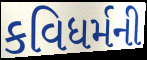
કવિધર્મની